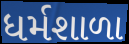
ધર્મશાળા